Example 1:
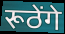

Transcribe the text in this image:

रूठेंगे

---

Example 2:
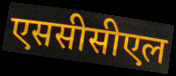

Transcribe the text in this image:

एससीसीएल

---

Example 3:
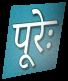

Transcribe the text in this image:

पूरेः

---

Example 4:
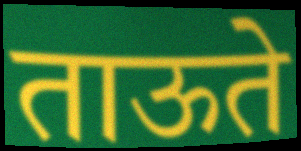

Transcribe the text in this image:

ताऊते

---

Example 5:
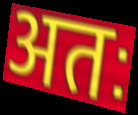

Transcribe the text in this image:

अतः